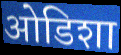
ओडिशा